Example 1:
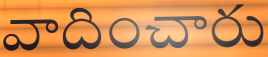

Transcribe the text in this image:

వాదించారు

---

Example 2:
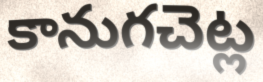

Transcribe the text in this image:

కానుగచెట్ల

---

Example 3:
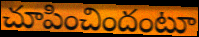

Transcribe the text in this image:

చూపించిందంటూ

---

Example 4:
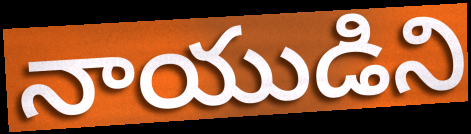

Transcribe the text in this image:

నాయుడిని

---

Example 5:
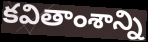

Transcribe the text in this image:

కవితాంశాన్ని